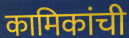
कामिकांची